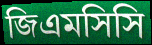
জিএমসিসি